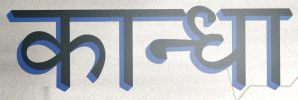
कान्धा